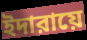
ইদারায়ে